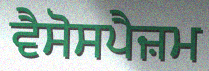
ਵੈਸੋਸਪੈਜ਼ਮ